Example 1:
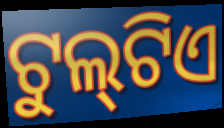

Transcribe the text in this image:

ଟୁଲ୍‍ଟିଏ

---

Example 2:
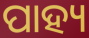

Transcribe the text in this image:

ପାହ୍ୟ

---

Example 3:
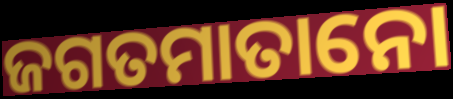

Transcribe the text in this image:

ଜଗତମାତାନୋ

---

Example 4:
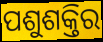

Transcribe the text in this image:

ପଶୁଶକ୍ତିର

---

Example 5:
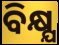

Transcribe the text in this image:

ବିକ୍ଷ୍ଯ